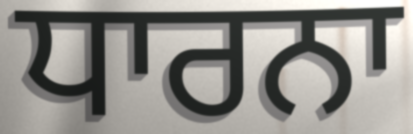
ਧਾਰਨਾ